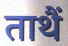
ताथैं